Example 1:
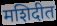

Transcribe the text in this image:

मशिदीत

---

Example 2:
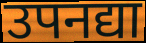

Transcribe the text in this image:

उपनद्या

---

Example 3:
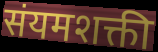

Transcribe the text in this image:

संयमशक्ती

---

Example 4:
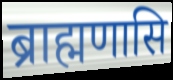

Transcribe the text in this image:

ब्राह्मणासि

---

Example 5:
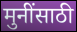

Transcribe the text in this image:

मुनींसाठी